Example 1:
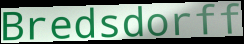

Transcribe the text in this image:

Bredsdorff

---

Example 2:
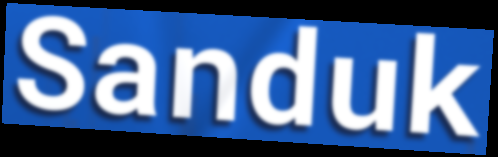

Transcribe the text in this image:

Sanduk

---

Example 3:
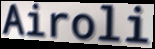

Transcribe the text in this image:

Airoli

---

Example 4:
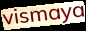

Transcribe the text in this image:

vismaya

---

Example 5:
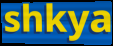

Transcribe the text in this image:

shkya